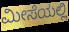
ಮೀಸೆಯಲ್ಲಿ